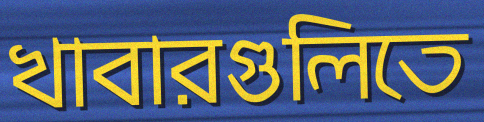
খাবারগুলিতে